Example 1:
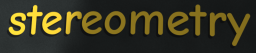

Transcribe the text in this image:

stereometry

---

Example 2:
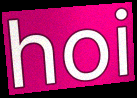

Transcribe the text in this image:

hoi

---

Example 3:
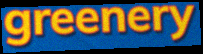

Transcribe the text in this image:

greenery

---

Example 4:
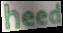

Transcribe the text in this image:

heed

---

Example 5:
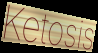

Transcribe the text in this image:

Ketosis